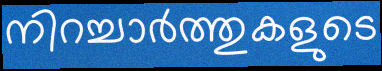
നിറച്ചാർത്തുകളുടെ